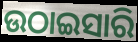
ଉଠାଇସାରି